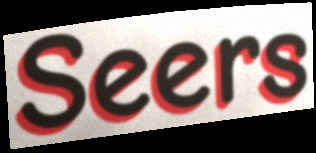
Seers